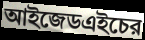
আইজেডএইচের